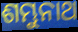
ଶମ୍ଭୁନାଥ